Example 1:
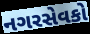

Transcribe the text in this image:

નગરસેવકો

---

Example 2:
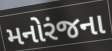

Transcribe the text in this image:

મનોરંજના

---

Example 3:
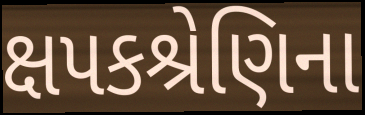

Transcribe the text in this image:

ક્ષપકશ્રેણિના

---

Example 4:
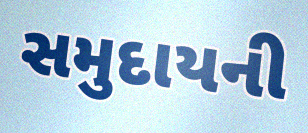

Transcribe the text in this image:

સમુદાયની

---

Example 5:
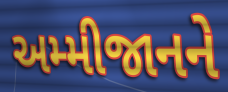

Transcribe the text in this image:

અમ્મીજાનને